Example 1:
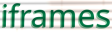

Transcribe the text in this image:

iframes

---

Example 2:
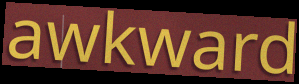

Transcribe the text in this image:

awkward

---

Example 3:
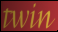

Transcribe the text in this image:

twin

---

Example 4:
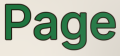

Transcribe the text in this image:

Page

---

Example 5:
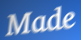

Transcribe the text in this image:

Made